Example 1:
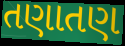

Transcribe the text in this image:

તણાતણ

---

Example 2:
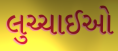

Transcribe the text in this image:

લુચ્ચાઈઓ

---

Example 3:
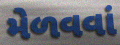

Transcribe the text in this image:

મેળવવાં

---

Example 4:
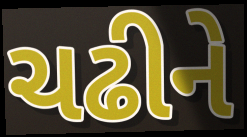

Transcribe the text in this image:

ચઢીને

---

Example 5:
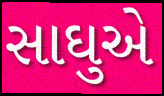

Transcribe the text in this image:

સાઘુએ